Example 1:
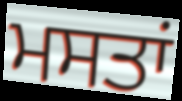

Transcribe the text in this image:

ਮਸਤਾਂ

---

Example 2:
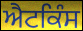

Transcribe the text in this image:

ਐਟਕਿੰਸ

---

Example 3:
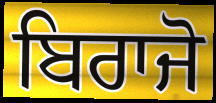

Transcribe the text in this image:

ਬਿਰਾਜੋ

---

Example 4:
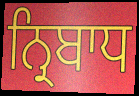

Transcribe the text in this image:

ਨ੍ਰਿਬਾਧ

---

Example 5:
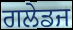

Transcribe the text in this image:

ਗਲੇਡਜ